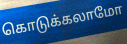
கொடுக்கலாமோ